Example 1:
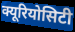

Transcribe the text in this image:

क्यूरियोसिटी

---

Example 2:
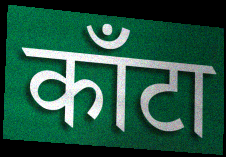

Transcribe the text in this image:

काँटा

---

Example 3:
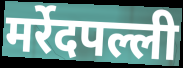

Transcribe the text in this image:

मर्रेदपल्ली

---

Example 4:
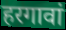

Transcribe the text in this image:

हरगावां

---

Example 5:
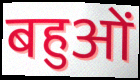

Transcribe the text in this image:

बहुओं